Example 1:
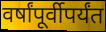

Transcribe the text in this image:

वर्षांपूर्वीपर्यंत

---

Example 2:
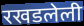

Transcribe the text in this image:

रखडलेली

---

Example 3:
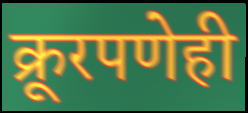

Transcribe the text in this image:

क्रूरपणेही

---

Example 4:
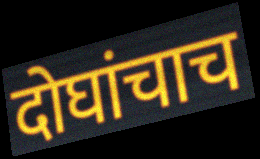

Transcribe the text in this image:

दोघांचाच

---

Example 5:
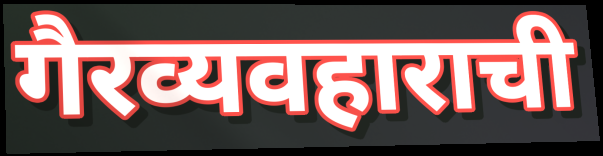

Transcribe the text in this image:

गैरव्यवहाराची